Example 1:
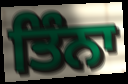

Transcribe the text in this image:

ਤਿੰਨਾ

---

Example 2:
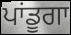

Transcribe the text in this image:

ਪਾਂਡੂਗਾ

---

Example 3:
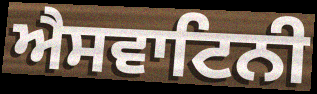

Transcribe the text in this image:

ਐਸਵਾਟਿਨੀ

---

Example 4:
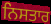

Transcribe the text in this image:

ਨਿਸਤਾਰ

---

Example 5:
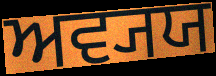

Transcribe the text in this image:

ਅਵ੍ਯਯ